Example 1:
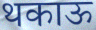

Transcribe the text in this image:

थकाऊ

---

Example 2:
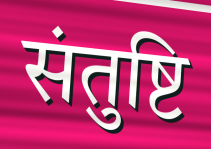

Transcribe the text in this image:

संतुष्टि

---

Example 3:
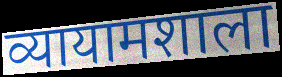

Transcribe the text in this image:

व्यायामशाला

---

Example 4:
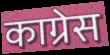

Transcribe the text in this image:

काग्रेस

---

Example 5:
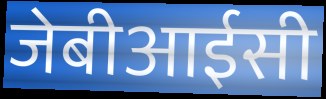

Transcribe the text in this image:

जेबीआईसी